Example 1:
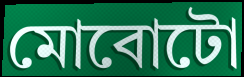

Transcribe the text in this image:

মোবোটো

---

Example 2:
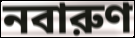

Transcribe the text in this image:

নবারুণ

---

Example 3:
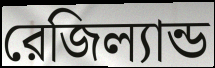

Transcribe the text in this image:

রেজিল্যান্ড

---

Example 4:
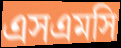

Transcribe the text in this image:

এসএমসি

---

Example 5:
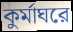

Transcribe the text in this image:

কুর্মাঘরে